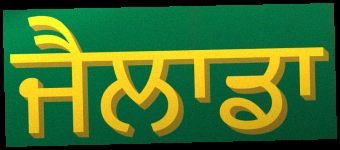
ਜੈਲਾਡਾ